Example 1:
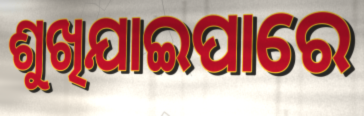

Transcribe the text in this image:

ଶୁଖିଯାଇପାରେ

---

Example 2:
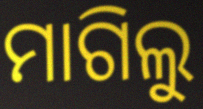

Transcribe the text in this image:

ମାଗିଲୁ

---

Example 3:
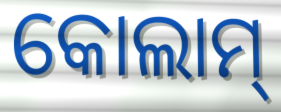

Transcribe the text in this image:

କୋଲାମ୍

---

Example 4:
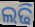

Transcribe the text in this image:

ଲଢି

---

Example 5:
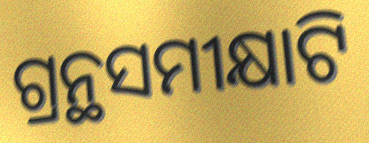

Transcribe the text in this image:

ଗ୍ରନ୍ଥସମୀକ୍ଷାଟି